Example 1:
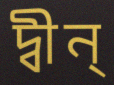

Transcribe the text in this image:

দ্বীন্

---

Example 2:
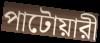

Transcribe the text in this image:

পাটোয়ারী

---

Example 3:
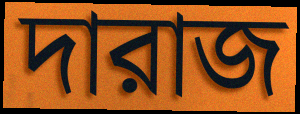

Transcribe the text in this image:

দারাজ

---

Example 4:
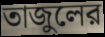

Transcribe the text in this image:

তাজুলের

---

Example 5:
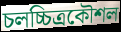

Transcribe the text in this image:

চলচ্চিত্রকৌশল